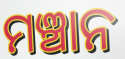
ମଞ୍ଚାନ